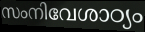
സംനിവേശാഠ്യം